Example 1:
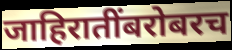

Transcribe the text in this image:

जाहिरातींबरोबरच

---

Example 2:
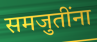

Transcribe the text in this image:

समजुतींना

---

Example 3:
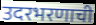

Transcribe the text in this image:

उदरभरणाची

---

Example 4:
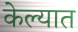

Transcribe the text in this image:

केल्यात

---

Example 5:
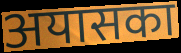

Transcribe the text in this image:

अयासका